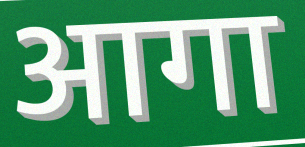
आगा